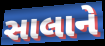
સાલાને